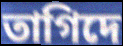
তাগিদে